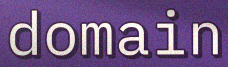
domain